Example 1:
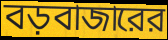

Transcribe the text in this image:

বড়বাজারের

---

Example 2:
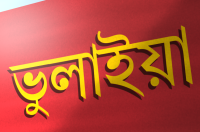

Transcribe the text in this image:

ভুলাইয়া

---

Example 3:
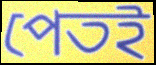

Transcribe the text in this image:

পেতই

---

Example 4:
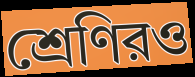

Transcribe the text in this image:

শ্রেণিরও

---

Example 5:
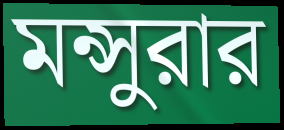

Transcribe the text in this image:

মন্সুরার